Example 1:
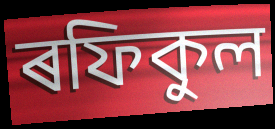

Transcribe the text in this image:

ৰফিকুল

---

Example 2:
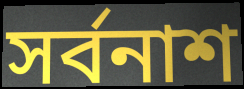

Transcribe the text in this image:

সৰ্বনাশ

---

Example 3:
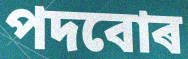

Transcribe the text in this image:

পদবোৰ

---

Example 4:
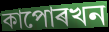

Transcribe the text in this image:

কাপোৰখন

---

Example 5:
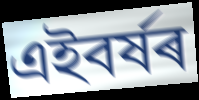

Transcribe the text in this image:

এইবৰ্ষৰ